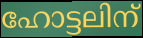
ഹോട്ടലിന്